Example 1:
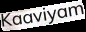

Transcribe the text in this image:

Kaaviyam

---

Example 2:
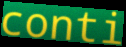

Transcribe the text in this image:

conti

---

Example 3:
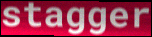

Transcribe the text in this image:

stagger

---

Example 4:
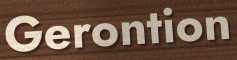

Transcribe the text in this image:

Gerontion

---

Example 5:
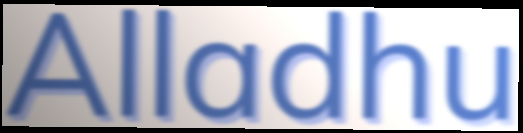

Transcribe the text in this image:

Alladhu